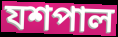
যশপাল